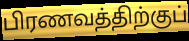
பிரணவத்திற்குப்